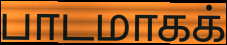
பாடமாகக்